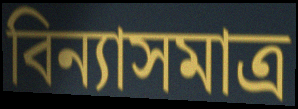
বিন্যাসমাত্র